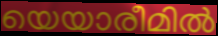
യെയാരീമിൽ